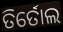
ତିର୍ତୋଲ